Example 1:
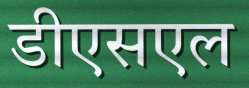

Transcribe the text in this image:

डीएसएल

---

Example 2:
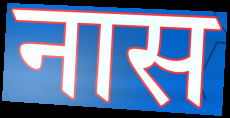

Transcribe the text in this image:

नास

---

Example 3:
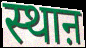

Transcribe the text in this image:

स्थाऩ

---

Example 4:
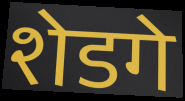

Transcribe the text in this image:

शेडगे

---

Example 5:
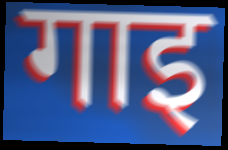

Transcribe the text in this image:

गाइ